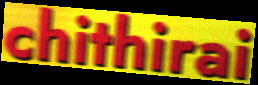
chithirai